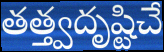
తత్త్వదృష్టిచే